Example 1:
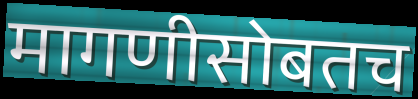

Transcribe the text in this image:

मागणीसोबतच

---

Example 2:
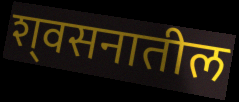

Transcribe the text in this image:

श्वसनातील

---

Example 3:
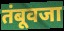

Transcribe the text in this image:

तंबूवजा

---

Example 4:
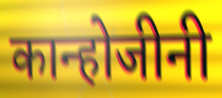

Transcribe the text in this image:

कान्होजीनी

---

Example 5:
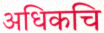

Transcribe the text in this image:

अधिकचि